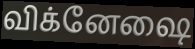
விக்னேஷை